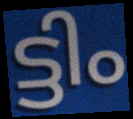
ട്ടിം